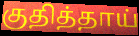
குதித்தாய்